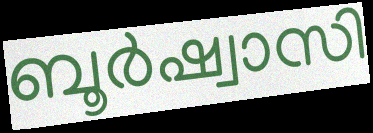
ബൂർഷ്വാസി